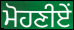
ਮੋਹਣੀਏਂ